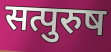
सत्पुरुष